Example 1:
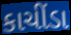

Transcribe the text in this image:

કાચીંડા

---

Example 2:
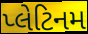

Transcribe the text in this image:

પ્લેટિનમ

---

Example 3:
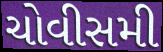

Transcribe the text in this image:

ચોવીસમી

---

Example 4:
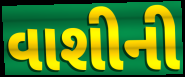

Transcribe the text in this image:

વાશીની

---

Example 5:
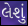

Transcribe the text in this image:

લેશું